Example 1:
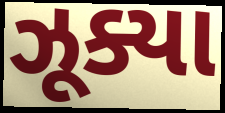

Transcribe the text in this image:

ઝૂક્યા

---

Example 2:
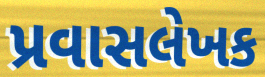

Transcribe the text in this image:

પ્રવાસલેખક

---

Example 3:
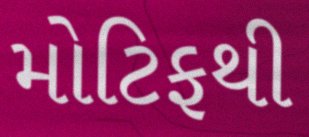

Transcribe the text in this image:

મોટિફથી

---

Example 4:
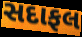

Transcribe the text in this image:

સદાફલ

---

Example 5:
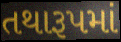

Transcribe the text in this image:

તથારૂપમાં